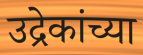
उद्रेकांच्या